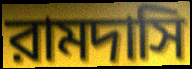
রামদাসি